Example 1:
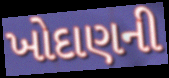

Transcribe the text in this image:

ખોદાણની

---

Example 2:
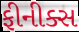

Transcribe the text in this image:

ફીનીક્સ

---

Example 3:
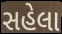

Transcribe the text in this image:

સહેલા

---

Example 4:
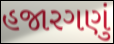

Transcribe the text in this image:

હજારગણું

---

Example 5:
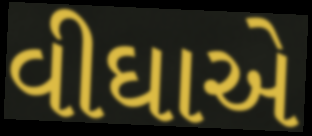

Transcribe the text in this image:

વીઘાએ